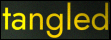
tangled